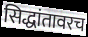
सिद्धांतावरच